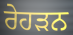
ਰੇਹੜਨ